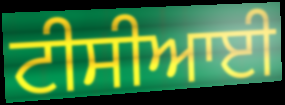
ਟੀਸੀਆਈ